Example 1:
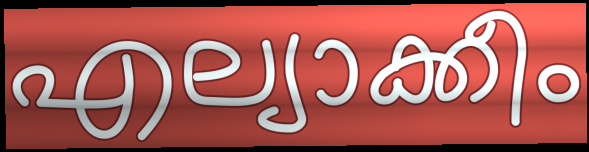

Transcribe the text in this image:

എല്യാക്കീം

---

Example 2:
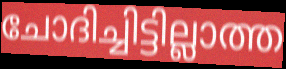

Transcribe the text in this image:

ചോദിച്ചിട്ടില്ലാത്ത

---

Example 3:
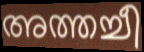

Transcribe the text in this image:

അത്തച്ചീ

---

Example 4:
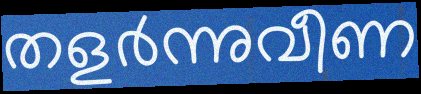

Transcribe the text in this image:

തളർന്നുവീണ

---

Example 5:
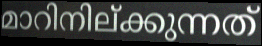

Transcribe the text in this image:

മാറിനില്ക്കുന്നത്